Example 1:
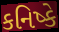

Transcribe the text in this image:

કનિષ્કે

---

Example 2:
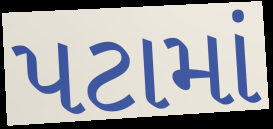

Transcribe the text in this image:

પટામાં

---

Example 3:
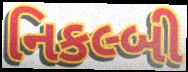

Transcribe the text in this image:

નિકલ્બી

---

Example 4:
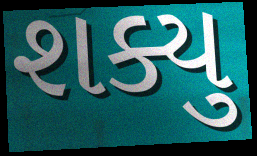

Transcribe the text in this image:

શક્યુ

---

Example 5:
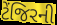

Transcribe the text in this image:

ટેંજિરની